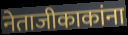
नेताजीकाकांना